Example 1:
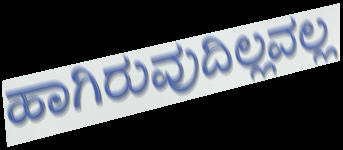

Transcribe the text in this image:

ಹಾಗಿರುವುದಿಲ್ಲವಲ್ಲ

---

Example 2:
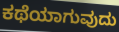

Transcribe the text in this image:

ಕಥೆಯಾಗುವುದು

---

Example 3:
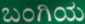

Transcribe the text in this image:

ಬಂಗಿಯ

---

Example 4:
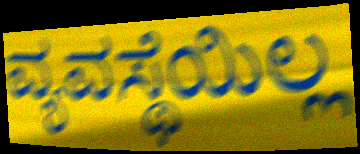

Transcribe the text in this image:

ವ್ಯವಸ್ಥೆಯಿಲ್ಲ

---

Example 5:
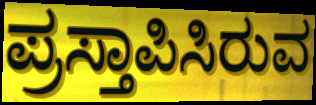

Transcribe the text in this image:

ಪ್ರಸ್ತಾಪಿಸಿರುವ